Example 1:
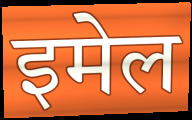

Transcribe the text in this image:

इमेल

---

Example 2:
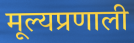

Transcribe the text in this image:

मूल्यप्रणाली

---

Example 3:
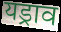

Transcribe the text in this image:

यड्राव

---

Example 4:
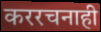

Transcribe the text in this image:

कररचनाही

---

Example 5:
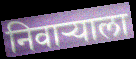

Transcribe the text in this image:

निवाऱ्याला